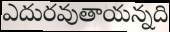
ఎదురవుతాయన్నది